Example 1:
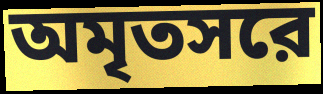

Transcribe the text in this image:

অমৃতসরে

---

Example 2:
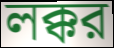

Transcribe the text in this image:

লক্কর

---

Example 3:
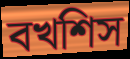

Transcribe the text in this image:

বখশিস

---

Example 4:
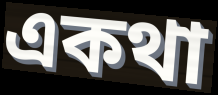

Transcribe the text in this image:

একথা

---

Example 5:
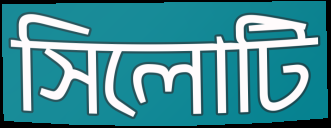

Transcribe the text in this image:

সিলোটি